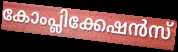
കോംപ്ലിക്കേഷൻസ്